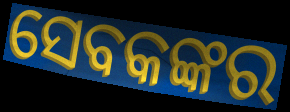
ସେବକଙ୍କର